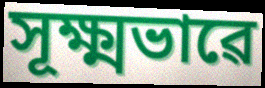
সূক্ষ্মভাৱে